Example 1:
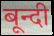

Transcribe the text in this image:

बून्दी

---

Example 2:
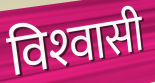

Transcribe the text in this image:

विश्‍वासी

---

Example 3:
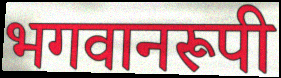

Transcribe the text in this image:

भगवानरूपी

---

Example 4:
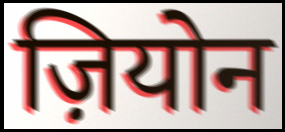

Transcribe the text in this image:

ज़ियोन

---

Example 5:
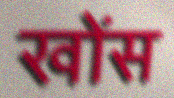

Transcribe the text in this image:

खोंस